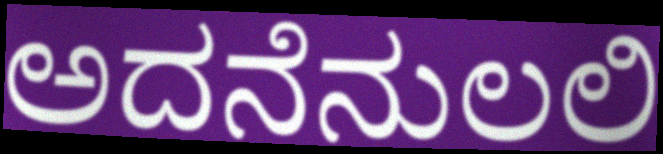
ಅದನೆನುಲಲಿ